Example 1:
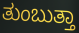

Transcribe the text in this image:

ತುಂಬುತ್ತಾ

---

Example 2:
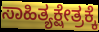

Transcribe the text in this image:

ಸಾಹಿತ್ಯಕ್ಷೇತ್ರಕ್ಕೆ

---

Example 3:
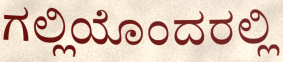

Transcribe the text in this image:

ಗಲ್ಲಿಯೊಂದರಲ್ಲಿ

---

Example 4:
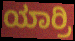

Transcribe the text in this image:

ಯಾರ್ರಿ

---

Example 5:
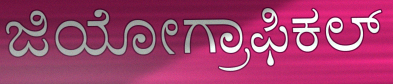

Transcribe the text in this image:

ಜಿಯೋಗ್ರಾಫಿಕಲ್